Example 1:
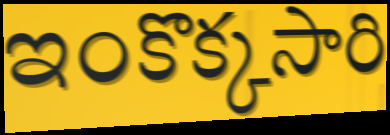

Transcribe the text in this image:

ఇంకొక్కసారి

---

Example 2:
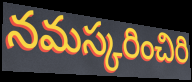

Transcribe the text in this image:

నమస్కరించిరి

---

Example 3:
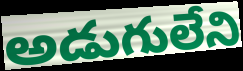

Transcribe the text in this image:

అడుగులేని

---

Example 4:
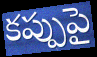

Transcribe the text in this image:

కప్పుపై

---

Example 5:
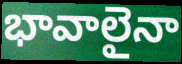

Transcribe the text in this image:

భావాలైనా